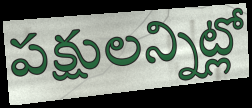
పక్షులన్నిట్లో